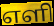
எளி